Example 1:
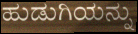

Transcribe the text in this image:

ಹುಡುಗಿಯನ್ನು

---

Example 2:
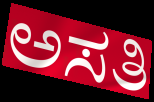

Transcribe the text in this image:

ಅಸತಿ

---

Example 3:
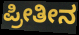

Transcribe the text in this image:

ಪ್ರೀತೀನ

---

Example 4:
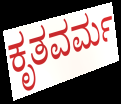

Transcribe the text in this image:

ಕೃತವರ್ಮ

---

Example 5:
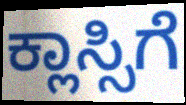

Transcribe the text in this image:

ಕ್ಲಾಸ್ಸಿಗೆ